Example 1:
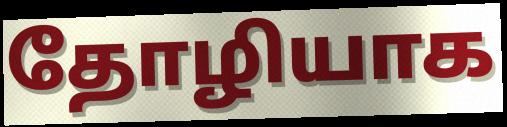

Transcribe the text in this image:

தோழியாக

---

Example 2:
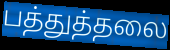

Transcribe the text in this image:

பத்துத்தலை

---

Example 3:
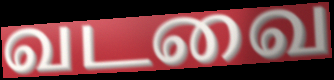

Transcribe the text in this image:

வடவை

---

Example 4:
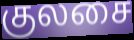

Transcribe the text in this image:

குலசை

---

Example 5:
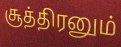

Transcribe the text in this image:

சூத்திரனும்